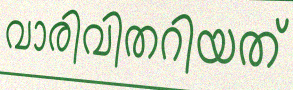
വാരിവിതറിയത്